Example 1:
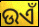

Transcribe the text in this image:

ଉଏଁ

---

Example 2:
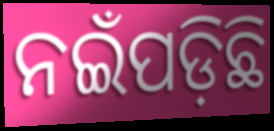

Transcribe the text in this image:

ନଇଁପଡ଼ିଛି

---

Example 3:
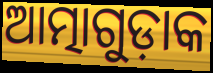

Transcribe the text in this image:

ଆତ୍ମାଗୁଡ଼ାକ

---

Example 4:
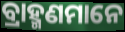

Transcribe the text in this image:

ବ୍ରାହ୍ମଣମାନେ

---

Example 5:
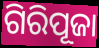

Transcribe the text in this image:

ଗିରିପୂଜା